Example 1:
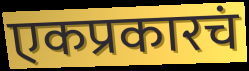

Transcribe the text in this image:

एकप्रकारचं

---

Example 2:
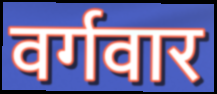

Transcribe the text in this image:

वर्गवार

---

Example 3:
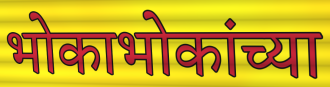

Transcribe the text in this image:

भोकाभोकांच्या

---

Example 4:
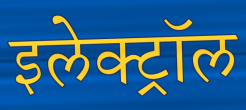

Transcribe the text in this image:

इलेक्ट्रॉल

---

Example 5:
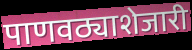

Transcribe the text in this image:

पाणवठ्याशेजारी